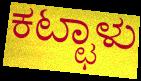
ಕಟ್ಟಾಳು